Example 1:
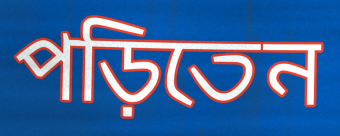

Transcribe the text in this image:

পড়িতেন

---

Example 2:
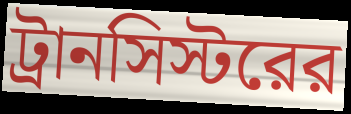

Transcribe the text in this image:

ট্রানসিস্টরের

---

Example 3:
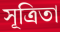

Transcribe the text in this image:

সূত্রিতা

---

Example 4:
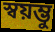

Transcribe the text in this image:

স্বয়ম্ভু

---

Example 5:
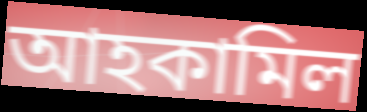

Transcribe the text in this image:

আহকামিল